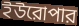
ইউরোপার